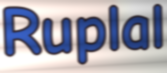
Ruplal